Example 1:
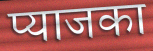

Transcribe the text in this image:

प्याजका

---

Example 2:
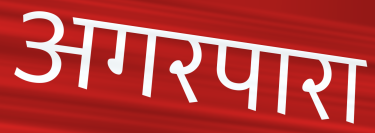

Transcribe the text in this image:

अगरपारा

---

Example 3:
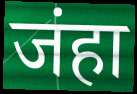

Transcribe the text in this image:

जंहा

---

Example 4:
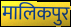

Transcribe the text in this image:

मालिकपुर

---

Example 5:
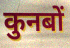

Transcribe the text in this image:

कुनबों